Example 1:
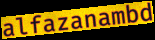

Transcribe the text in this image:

alfazanambd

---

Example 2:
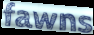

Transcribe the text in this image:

fawns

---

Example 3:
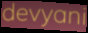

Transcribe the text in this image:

devyani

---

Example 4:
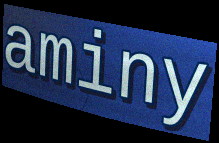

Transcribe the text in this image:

aminy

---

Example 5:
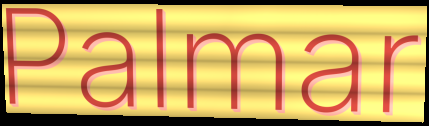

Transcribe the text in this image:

Palmar